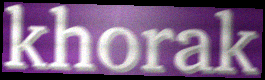
khorak